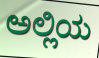
ಅಲ್ಲಿಯ